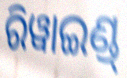
ରିୱାଇଣ୍ଡ୍